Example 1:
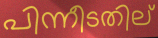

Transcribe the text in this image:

പിന്നീടതില്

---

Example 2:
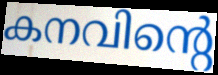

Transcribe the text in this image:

കനവിന്റെ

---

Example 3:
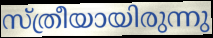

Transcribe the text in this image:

സ്ത്രീയായിരുന്നു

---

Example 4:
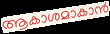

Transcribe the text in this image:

ആകാശമാകാൻ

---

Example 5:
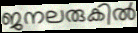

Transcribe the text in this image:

ജനലരുകിൽ